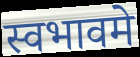
स्वभावमे